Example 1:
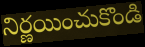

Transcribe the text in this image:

నిర్ణయించుకొండి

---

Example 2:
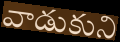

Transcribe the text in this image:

వాడుకుని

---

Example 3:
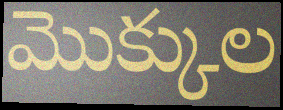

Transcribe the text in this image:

మొక్కుల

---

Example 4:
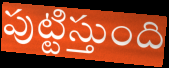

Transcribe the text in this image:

పుట్టిస్తుంది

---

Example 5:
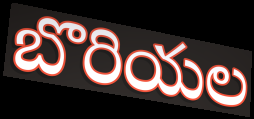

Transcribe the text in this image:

బొరియల